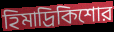
হিমাদ্রিকিশোর